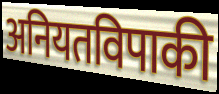
अनियतविपाकी